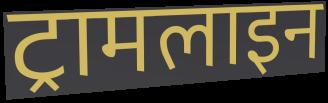
ट्रामलाइन